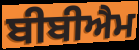
ਬੀਬੀਐਮ